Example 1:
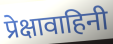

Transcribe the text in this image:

प्रेक्षावाहिनी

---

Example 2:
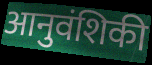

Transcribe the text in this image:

आनुवंशिकी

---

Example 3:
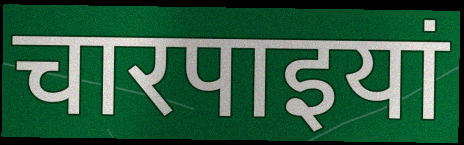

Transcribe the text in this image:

चारपाइयां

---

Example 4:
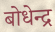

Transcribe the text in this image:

बोधेन्द्र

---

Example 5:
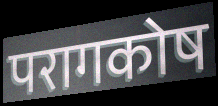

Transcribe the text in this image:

परागकोष